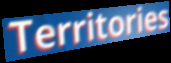
Territories